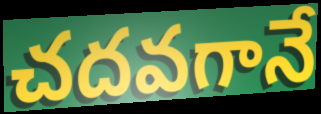
చదవగానే